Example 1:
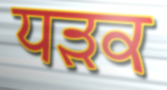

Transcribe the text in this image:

ਧੜਕ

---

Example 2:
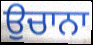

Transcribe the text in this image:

ਉਚਾਨਾ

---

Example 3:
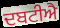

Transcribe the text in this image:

ਦਬਟੀਐ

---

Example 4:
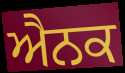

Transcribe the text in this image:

ਐਨਕ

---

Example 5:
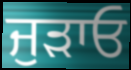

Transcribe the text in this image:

ਜੁੜਾਓ